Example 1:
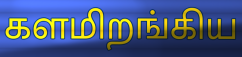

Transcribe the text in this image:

களமிறங்கிய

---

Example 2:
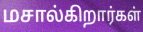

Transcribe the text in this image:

மசால்கிறார்கள்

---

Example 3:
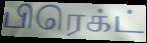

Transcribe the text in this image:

பிரெக்ட்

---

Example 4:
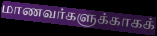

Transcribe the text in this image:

மாணவர்களுக்காகக்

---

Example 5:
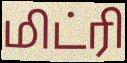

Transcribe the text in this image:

மிட்ரி